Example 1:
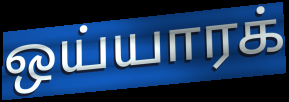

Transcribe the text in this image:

ஒய்யாரக்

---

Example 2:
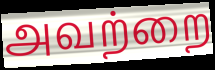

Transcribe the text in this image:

அவற்றை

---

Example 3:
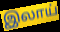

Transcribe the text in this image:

இலாய்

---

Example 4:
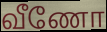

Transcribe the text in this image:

வீணோ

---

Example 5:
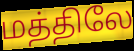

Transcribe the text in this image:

மத்திலே